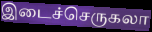
இடைச்செருகலா